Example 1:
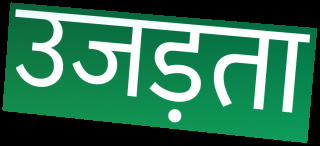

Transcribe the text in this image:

उजड़ता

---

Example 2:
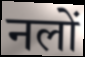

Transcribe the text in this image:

नलों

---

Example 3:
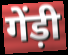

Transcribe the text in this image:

गेंड़ी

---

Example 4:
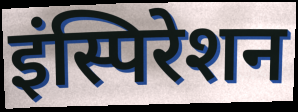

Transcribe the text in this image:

इंस्पिरेशन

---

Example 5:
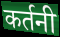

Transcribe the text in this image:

कर्तनी